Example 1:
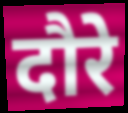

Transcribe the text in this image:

दौरे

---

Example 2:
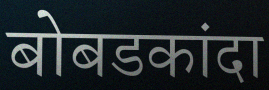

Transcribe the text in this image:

बोबडकांदा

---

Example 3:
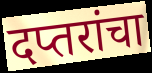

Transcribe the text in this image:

दप्तरांचा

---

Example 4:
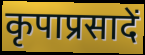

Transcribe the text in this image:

कृपाप्रसादें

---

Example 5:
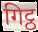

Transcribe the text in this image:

गिट्ठ